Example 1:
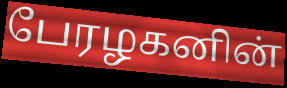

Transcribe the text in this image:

பேரழகனின்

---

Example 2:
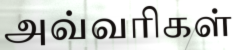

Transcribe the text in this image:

அவ்வரிகள்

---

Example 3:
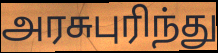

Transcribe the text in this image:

அரசுபுரிந்து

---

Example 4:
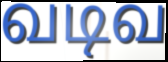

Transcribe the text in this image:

வடிவ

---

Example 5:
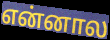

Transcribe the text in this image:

என்னால